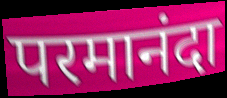
परमानंदा